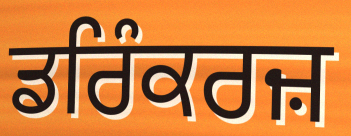
ਡਰਿੰਕਰਜ਼